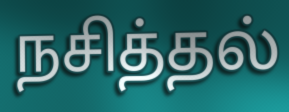
நசித்தல்